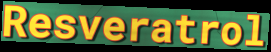
Resveratrol